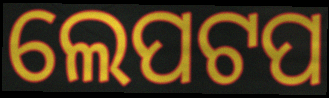
ଲେପଟପ